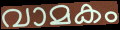
വാമകം